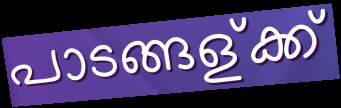
പാടങ്ങള്ക്ക്